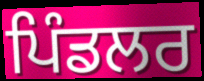
ਪਿੰਡਲਰ